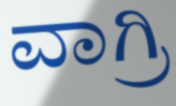
ವಾಗ್ರಿ